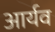
आर्यव